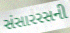
સંસારરસની